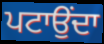
ਪਟਾਉਂਦਾ